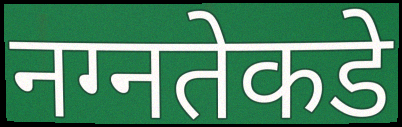
नग्नतेकडे